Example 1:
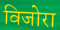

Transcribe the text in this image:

विजोरा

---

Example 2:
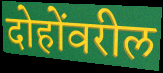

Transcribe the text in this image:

दोहोंवरील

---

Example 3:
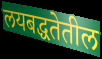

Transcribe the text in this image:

लयबद्धतेतील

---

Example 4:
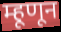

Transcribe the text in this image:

म्हूणून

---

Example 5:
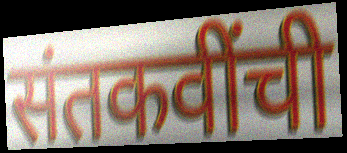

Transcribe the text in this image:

संतकवींची